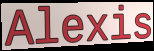
Alexis